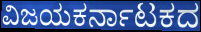
ವಿಜಯಕರ್ನಾಟಕದ